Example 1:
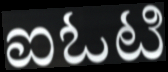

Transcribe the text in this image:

ಐಓಟಿ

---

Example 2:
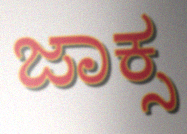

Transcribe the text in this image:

ಜಾಕ್ಸ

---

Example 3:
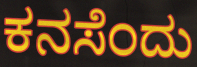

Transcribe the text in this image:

ಕನಸೆಂದು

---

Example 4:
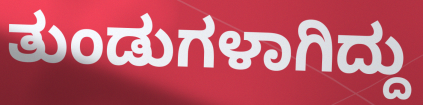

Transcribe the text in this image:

ತುಂಡುಗಳಾಗಿದ್ದು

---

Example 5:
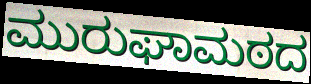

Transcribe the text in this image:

ಮುರುಘಾಮಠದ